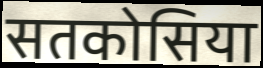
सतकोसिया